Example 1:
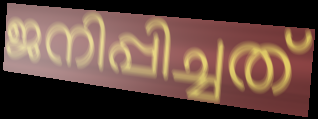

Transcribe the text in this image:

ജനിപ്പിച്ചത്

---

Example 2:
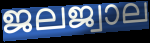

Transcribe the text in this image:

ജലജ്വാല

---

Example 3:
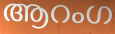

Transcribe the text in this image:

ആറംഗ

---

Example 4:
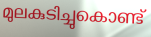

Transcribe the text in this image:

മുലകുടിച്ചുകൊണ്ട്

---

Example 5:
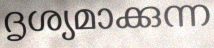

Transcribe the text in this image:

ദൃശ്യമാക്കുന്ന